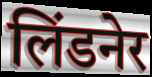
लिंडनेर